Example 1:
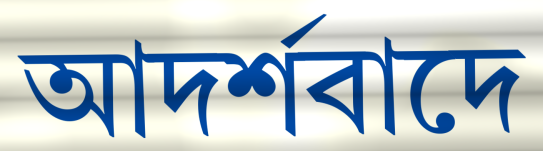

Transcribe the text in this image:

আদর্শবাদে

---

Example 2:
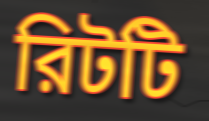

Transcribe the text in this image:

রিটটি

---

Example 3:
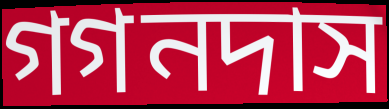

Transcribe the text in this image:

গগনদাস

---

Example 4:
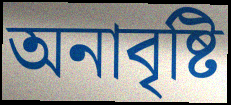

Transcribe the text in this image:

অনাবৃষ্টি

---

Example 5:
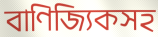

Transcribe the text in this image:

বাণিজ্যিকসহ